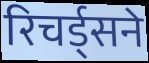
रिचर्ड्सने